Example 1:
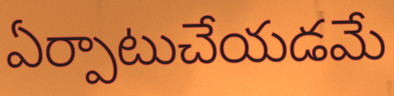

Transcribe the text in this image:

ఏర్పాటుచేయడమే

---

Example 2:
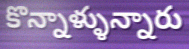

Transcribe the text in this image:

కొన్నాళ్ళున్నారు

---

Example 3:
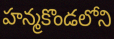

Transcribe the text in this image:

హన్మకొండలోని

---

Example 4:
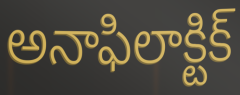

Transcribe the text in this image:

అనాఫిలాక్టిక్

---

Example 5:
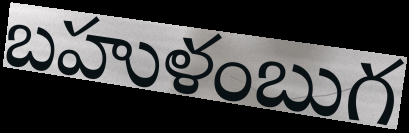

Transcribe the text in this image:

బహుళంబుగ